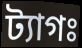
ট্যাগঃ